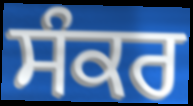
ਸੰਕਰ